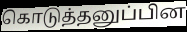
கொடுத்தனுப்பின